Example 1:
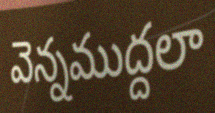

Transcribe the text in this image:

వెన్నముద్దలా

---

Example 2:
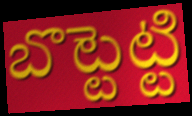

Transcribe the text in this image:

బొట్టెట్టి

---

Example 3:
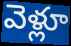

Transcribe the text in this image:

వెళ్లూ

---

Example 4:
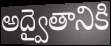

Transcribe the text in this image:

అద్వైతానికి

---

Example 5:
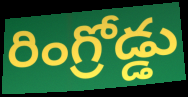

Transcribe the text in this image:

రింగ్రోడ్డు